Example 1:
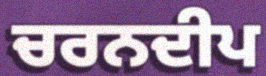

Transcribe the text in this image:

ਚਰਨਦੀਪ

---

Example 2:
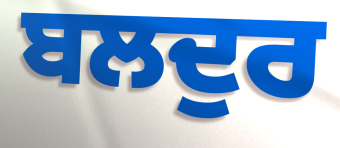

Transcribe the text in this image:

ਬਲਦੁਰ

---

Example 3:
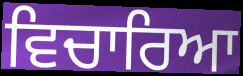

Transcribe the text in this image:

ਵਿਚਾਰਿਆ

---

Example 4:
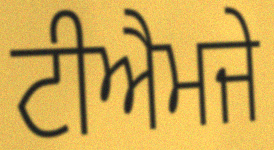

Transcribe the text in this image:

ਟੀਐਮਜੇ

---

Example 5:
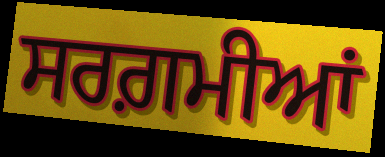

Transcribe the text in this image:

ਸਰਗ਼ਮੀਆਂ